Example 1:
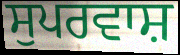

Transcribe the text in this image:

ਸੁਪਰਵਾਸ਼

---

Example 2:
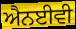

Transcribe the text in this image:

ਐਨਈਵੀ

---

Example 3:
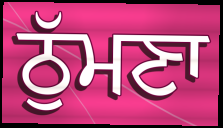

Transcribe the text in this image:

ਠੁੱਮਣਾ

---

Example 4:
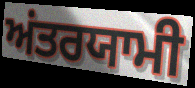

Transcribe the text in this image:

ਅਂਤਰਯਾਮੀ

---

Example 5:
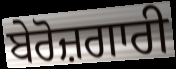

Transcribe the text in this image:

ਬੇਰੋਜ਼ਗਾਰੀ